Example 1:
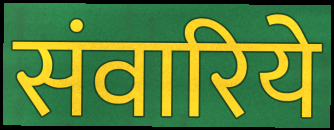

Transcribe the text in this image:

संवारिये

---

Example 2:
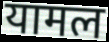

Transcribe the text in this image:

यामल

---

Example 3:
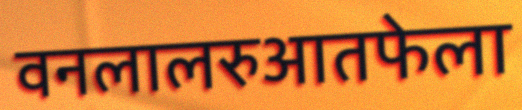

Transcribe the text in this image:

वनलालरुआतफेला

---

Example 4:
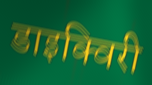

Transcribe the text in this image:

डाइक्विरी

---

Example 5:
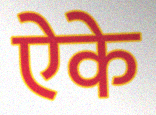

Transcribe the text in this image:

ऐके